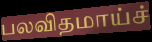
பலவிதமாய்ச்